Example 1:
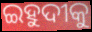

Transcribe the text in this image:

ଇହୁଦୀକୁ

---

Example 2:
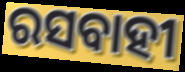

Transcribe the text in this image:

ରସବାହୀ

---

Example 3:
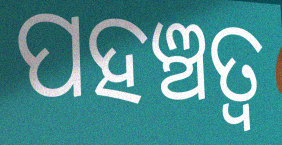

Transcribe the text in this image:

ପହଞ୍ଚତ୍ବ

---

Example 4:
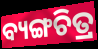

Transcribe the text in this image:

ବ୍ୟଙ୍ଗଚିତ୍ର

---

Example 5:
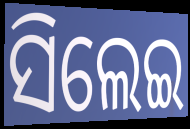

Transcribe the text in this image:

ସିଲେଇ